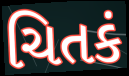
ચિતકં